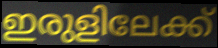
ഇരുളിലേക്ക്